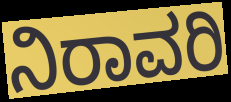
ನಿರಾವರಿ